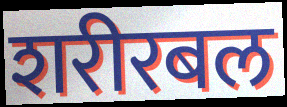
शरीरबल